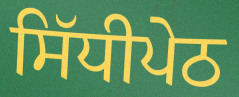
ਸਿੱਧੀਪੇਠ